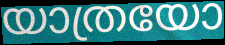
യാത്രയോ